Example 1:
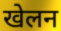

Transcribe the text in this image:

खेलन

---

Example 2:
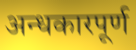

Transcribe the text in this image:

अन्धकारपूर्ण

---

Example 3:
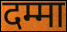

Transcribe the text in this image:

दम्मा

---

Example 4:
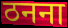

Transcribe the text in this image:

ठनना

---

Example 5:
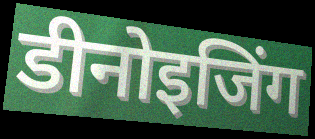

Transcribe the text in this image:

डीनोइजिंग